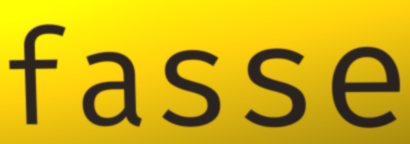
fasse